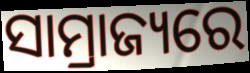
ସାମ୍ରାଜ୍ୟରେ